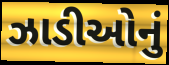
ઝાડીઓનું